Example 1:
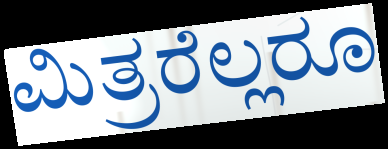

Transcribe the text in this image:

ಮಿತ್ರರೆಲ್ಲರೂ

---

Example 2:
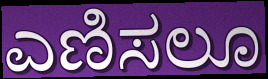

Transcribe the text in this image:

ಎಣಿಸಲೂ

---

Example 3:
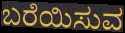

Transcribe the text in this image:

ಬರೆಯಿಸುವ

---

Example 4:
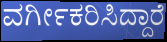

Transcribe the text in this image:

ವರ್ಗೀಕರಿಸಿದ್ದಾರೆ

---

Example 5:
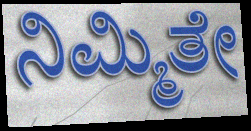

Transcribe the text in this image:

ನಿಮ್ಮಿತೇ